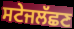
ਸਟੇਜਲੱਛਣ